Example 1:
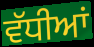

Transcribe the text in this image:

ਵੱਧੀਆਂ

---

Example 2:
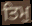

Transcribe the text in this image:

ਤਿਮੁ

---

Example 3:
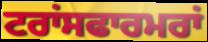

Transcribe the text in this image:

ਟਰਾਂਸਫਾਰਮਰਾਂ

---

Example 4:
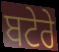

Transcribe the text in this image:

ਬਟੇਰੇ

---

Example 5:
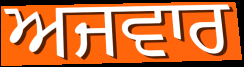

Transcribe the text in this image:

ਅਜਵਾਰ